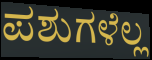
ಪಶುಗಳೆಲ್ಲ